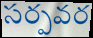
సర్పవర